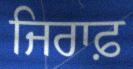
ਜਿਰਾਫ਼